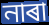
নাৰা